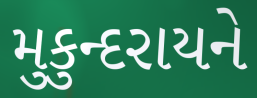
મુકુન્દરાયને